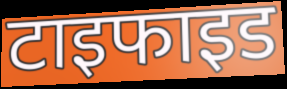
टाइफाइड